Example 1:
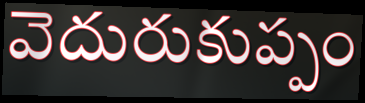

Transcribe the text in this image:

వెదురుకుప్పం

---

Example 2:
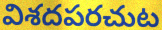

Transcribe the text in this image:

విశదపరచుట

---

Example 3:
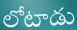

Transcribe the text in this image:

లోటాడు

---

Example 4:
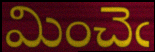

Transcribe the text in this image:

మించెఁ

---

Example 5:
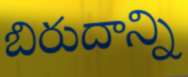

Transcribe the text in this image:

బిరుదాన్ని